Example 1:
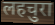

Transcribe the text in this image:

लहचुरा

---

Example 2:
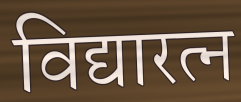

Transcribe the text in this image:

विद्यारत्न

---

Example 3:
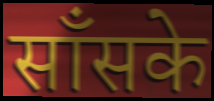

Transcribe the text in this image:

साँसके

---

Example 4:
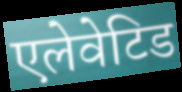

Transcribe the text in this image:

एलेवेटिड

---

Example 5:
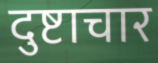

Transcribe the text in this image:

दुष्टाचार